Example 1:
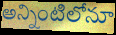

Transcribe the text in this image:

అన్నింటిలోనూ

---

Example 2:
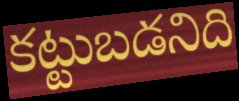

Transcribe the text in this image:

కట్టుబడనిది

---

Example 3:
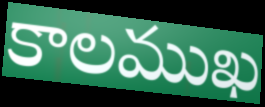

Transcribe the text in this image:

కాలముఖ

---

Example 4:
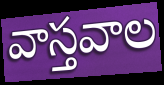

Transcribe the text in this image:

వాస్తవాల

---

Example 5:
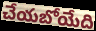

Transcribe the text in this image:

చేయబోయేది